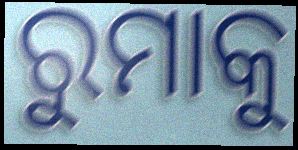
ରୁମାକୁ